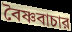
বৈষ্ণবাচার